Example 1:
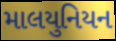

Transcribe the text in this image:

માલયુનિયન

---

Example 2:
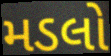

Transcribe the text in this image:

મડલો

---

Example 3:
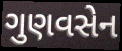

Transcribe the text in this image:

ગુણવસેન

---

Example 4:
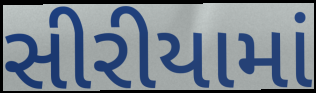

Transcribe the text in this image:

સીરીયામાં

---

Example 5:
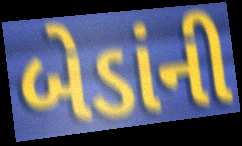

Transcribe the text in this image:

બેડાંની